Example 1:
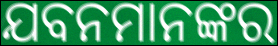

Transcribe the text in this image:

ଯବନମାନଙ୍କର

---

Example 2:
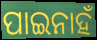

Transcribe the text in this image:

ପାଇନାହଁ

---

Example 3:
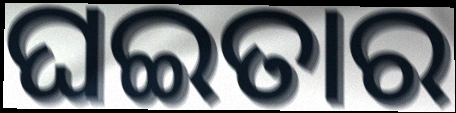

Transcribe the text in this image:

ଘଇତାର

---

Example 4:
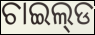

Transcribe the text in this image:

ଚାଇଲ୍‌ଡ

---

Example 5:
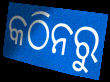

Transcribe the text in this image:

କଠିନରୁ